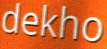
dekho